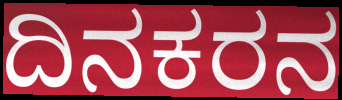
ದಿನಕರನ